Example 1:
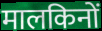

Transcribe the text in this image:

मालकिनों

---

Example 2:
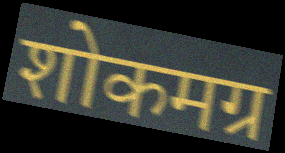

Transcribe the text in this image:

शोकमग्र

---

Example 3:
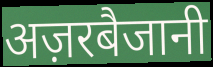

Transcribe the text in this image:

अज़रबैजानी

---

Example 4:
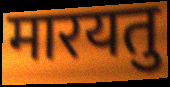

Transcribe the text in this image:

मारयतु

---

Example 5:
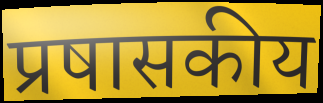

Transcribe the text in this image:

प्रषासकीय